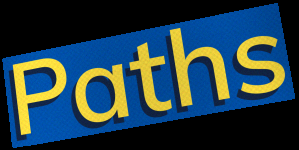
Paths